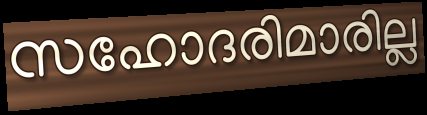
സഹോദരിമാരില്ല